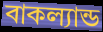
বাকল্যান্ড